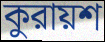
কুরায়শ